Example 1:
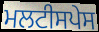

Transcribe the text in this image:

ਮਲਟੀਸਪੇਸ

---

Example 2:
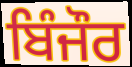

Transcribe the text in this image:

ਬਿੰਜੌਰ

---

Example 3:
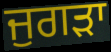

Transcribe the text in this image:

ਜੁਗੜਾ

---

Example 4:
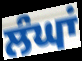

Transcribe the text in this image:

ਲੰਘਾਂ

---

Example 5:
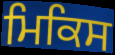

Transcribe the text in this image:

ਮਿਕਿਸ